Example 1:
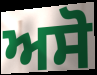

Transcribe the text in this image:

ਅਸੋ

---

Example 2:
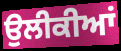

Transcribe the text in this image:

ਉਲੀਕੀਆਂ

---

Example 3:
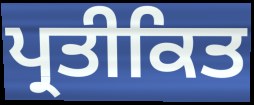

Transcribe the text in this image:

ਪ੍ਰਤੀਕਿਤ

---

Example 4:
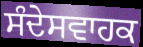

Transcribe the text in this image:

ਸੰਦੇਸਵਾਹਕ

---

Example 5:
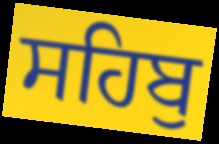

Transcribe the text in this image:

ਸਹਿਬੁ